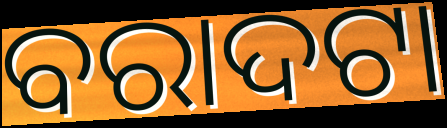
ବରାଦଟା